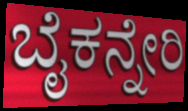
ಬೈಕನ್ನೇರಿ